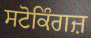
ਸਟੋਕਿੰਗਜ਼